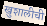
खुशालीची